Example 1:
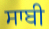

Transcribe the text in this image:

ਸਾਬੀ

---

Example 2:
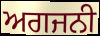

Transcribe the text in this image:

ਅਗਜਨੀ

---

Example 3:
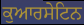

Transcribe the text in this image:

ਕੁਆਰਸੇਟਿਨ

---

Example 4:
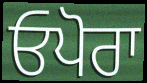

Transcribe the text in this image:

ਓਪੋਰਾ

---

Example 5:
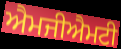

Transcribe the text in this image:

ਐਮਜੀਐਮਟੀ